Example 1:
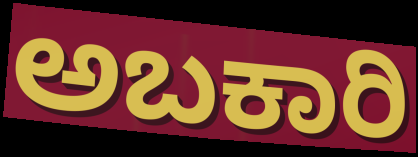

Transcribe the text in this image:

ಅಬಕಾರಿ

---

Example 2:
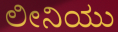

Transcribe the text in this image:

ಲೀನಿಯು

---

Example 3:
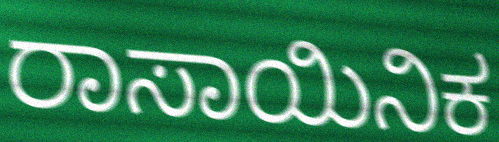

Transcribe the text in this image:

ರಾಸಾಯಿನಿಕ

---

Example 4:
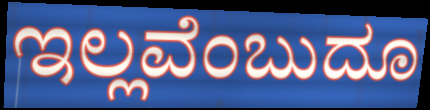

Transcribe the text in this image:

ಇಲ್ಲವೆಂಬುದೂ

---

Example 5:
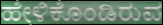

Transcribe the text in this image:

ಹೇಳಿಕೊಂಡಿರುವ